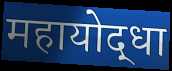
महायोद्धा